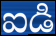
ఐడి